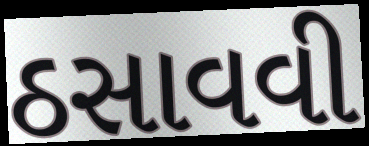
ઠસાવવી